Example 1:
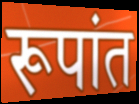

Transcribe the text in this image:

रूपांत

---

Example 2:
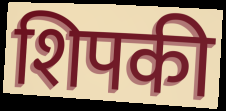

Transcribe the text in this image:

शिपकी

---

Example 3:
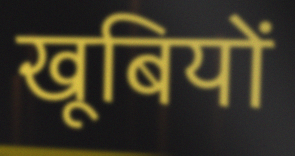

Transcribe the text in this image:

खूबियों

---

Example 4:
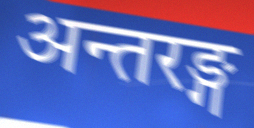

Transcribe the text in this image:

अन्तरङ्ग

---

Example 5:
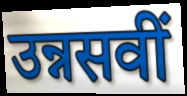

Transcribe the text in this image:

उन्नसवीं